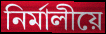
নিৰ্মালীয়ে